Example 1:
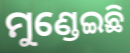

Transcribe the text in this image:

ମୁଣ୍ଡେଇଛି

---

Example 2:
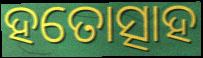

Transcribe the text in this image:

ହତୋତ୍ସାହ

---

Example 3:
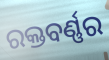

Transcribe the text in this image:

ରକ୍ତବର୍ଣ୍ଣର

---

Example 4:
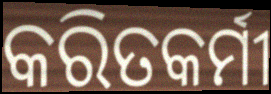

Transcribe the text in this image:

କରିତକର୍ମୀ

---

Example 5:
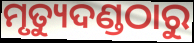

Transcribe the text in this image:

ମୃତ୍ୟୁଦଣ୍ଡଠାରୁ